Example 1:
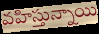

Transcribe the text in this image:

వహిస్తున్నాయి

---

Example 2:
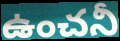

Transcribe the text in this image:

ఉంచనీ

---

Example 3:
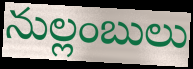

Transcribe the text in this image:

నుల్లంబులు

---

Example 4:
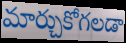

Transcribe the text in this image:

మార్చుకోగలడా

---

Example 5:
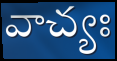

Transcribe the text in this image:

వాచ్యః